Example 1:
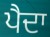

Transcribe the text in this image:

ਪੈਦਾ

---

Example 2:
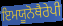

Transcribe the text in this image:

ਇਮਯੂਨੋਥੈਰੇਪੀ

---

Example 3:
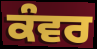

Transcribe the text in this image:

ਕੰਵਰ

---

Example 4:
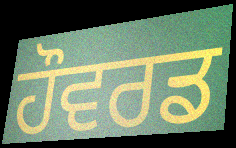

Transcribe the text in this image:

ਹੌਵਰਡ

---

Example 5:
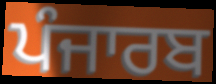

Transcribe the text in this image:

ਪੰਜਾਰਬ